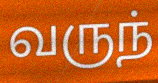
வருந்